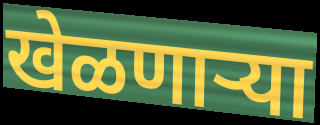
खेळणाऱ्या